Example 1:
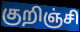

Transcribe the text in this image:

குறிஞ்சி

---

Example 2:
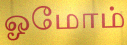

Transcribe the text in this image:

ஓமோம்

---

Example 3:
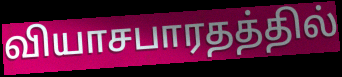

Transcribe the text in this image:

வியாசபாரதத்தில்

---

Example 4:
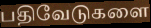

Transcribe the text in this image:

பதிவேடுகளை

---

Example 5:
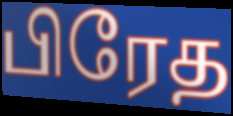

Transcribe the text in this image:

பிரேத